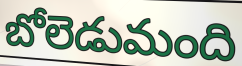
బోలెడుమంది